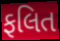
ફલિત